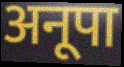
अनूपा